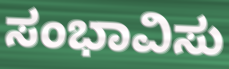
ಸಂಭಾವಿಸು